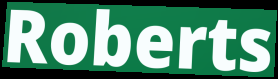
Roberts